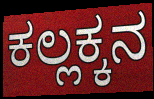
ಕಲ್ಲಕ್ಕನ